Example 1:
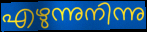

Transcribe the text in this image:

എഴുന്നുനിന്നു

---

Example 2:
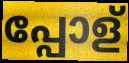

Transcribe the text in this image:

പ്പോള്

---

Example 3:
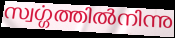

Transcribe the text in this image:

സ്വൎഗ്ഗത്തിൽനിന്നു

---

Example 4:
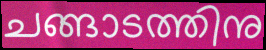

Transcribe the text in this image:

ചങ്ങാടത്തിനു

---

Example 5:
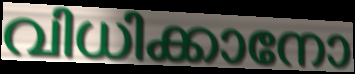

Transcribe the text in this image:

വിധിക്കാനോ